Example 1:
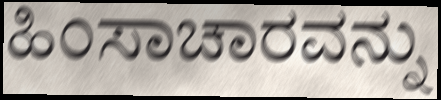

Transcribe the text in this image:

ಹಿಂಸಾಚಾರವನ್ನು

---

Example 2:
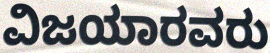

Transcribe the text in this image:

ವಿಜಯಾರವರು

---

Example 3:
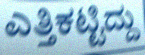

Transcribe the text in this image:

ಎತ್ತಿಕಟ್ಟಿದ್ದು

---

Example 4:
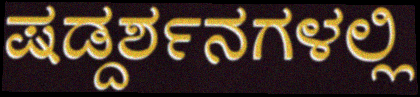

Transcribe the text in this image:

ಷಡ್ದರ್ಶನಗಳಲ್ಲಿ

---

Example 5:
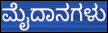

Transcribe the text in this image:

ಮೈದಾನಗಳು